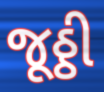
જૂઠ્ઠી